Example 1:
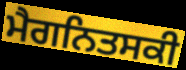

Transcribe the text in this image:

ਮੈਗਨਿਤਸਕੀ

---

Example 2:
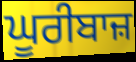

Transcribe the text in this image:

ਘੂਰੀਬਾਜ਼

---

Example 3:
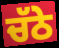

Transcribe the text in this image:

ਚੱਠੇ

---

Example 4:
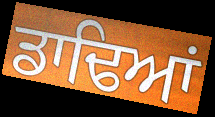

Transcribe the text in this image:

ਡਾਢਿਆਂ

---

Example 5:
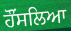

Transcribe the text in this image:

ਹੌਂਸਲਿਆ